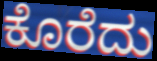
ಕೊರೆದು